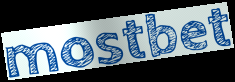
mostbet